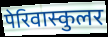
पेरिवास्कुलर